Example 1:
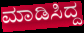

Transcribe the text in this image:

ಮಾಡಿಸಿದ್ದ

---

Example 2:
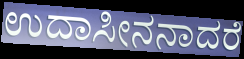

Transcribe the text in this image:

ಉದಾಸೀನನಾದರೆ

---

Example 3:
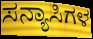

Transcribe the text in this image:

ಸನ್ಯಾಸಿಗಳ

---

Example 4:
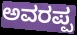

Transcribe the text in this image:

ಅವರಪ್ಪ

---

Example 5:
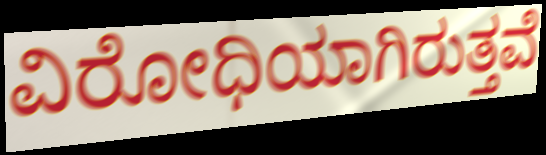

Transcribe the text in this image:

ವಿರೋಧಿಯಾಗಿರುತ್ತವೆ